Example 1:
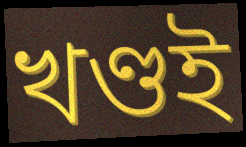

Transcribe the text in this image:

খণ্ডই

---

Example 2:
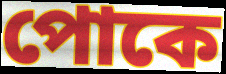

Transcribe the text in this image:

পোকে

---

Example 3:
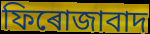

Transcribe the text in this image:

ফিৰোজাবাদ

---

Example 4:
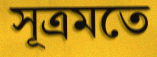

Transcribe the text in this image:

সূত্ৰমতে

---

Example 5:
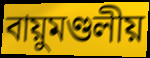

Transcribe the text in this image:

বায়ুমণ্ডলীয়